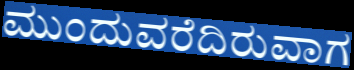
ಮುಂದುವರೆದಿರುವಾಗ